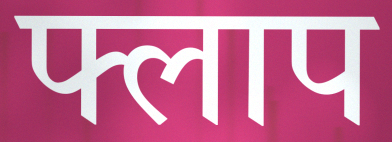
फ्लाप